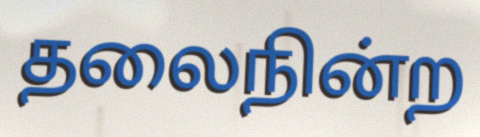
தலைநின்ற